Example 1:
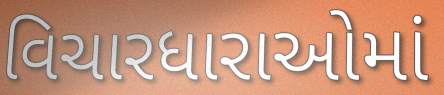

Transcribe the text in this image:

વિચારધારાઓમાં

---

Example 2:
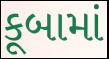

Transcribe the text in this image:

કૂબામાં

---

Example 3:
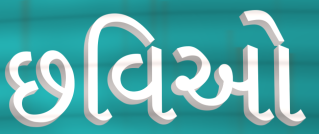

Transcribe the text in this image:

છવિઓ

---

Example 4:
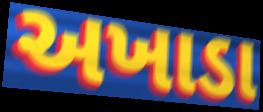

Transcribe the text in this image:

અખાડા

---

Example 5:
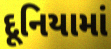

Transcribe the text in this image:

દૂનિયામાં